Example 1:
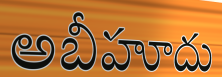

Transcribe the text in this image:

అబీహూదు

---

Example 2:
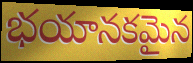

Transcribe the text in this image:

భయానకమైన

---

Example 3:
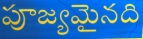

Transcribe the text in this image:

పూజ్యమైనది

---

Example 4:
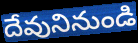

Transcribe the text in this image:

దేవునినుండి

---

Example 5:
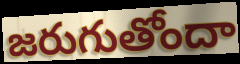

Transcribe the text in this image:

జరుగుతోందా